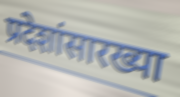
प्रदेशांसारख्या